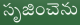
సృజించెను